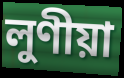
লুণীয়া